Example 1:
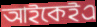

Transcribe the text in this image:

আইকেইএ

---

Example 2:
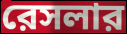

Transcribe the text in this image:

রেসলার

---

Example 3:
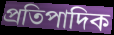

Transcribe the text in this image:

প্রতিপাদিক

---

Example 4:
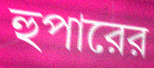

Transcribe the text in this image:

হুপারের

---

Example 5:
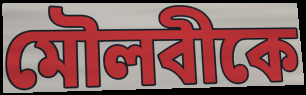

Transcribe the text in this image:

মৌলবীকে